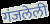
गंजलेली